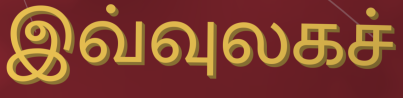
இவ்வுலகச்